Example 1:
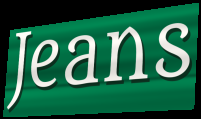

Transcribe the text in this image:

Jeans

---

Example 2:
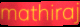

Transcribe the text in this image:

mathiraj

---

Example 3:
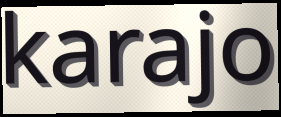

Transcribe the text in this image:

karajo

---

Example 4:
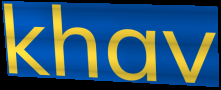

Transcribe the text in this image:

khav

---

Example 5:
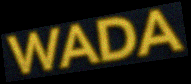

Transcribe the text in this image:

WADA